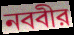
নববীর